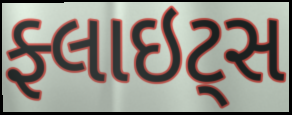
ફ્લાઇટ્સ